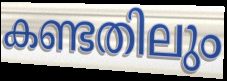
കണ്ടതിലും